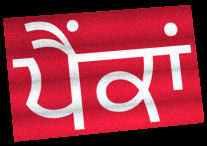
ਪੈਂਕਾਂ